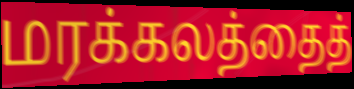
மரக்கலத்தைத்